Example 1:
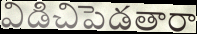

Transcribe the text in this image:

విడిచిపెడతారా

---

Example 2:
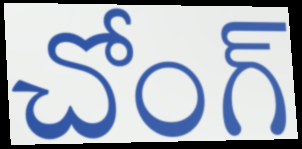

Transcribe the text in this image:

చోంగ్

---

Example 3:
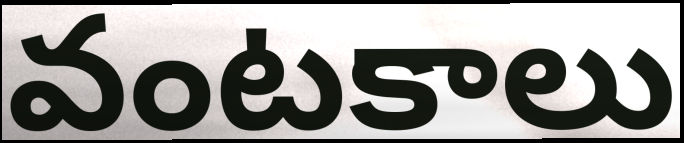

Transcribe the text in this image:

వంటకాలు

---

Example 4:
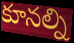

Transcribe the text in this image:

కూనల్ని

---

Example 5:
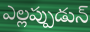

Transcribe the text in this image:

ఎల్లప్పుడున్